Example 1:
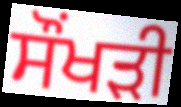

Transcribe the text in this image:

ਸੌਂਖੜੀ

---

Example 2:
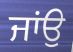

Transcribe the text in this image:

ਜਾਂਉ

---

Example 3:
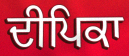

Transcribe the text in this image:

ਦੀਪਿਕਾ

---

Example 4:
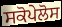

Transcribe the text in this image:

ਸਕੋਪੇਲੋਸ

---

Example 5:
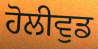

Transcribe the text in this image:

ਹੋਲੀਵੁਡ